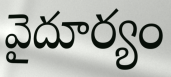
వైదూర్యం